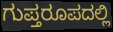
ಗುಪ್ತರೂಪದಲ್ಲಿ